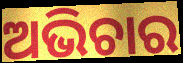
ଅଭିଚାର